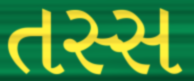
તસ્સ